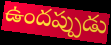
ఉందప్పుడు